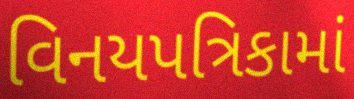
વિનયપત્રિકામાં